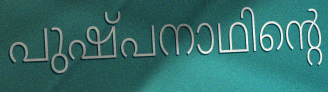
പുഷ്പനാഥിന്റെ